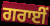
ਗਰਾਈਂ